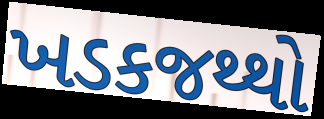
ખડકજથ્થો